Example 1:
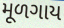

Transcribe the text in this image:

મૂળગાય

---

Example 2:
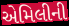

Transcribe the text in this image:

એમિલીની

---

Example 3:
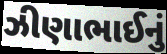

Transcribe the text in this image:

ઝીણાભાઈનું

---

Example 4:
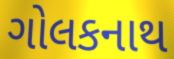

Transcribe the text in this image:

ગોલકનાથ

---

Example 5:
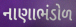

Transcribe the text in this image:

નાણાભંડોળ